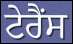
ਟੇਰੈਂਸ